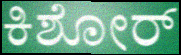
ಕಿಶೋರ್